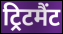
ट्रिटमैंट